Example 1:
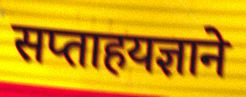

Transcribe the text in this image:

सप्ताहयज्ञाने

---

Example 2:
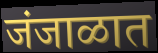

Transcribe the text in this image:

जंजाळात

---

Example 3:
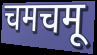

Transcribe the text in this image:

चमचमू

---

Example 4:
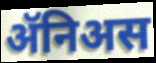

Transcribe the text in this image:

ॲनिअस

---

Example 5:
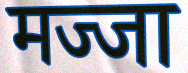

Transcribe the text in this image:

मज्जा